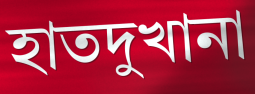
হাতদুখানা